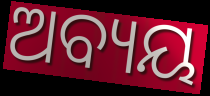
ଅବ୍ୟୟ